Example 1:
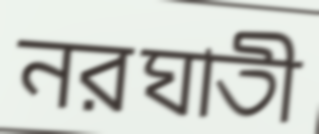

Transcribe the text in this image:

নরঘাতী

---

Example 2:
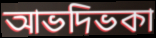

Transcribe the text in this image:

আভদিভকা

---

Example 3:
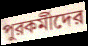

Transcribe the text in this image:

পুরকর্মীদের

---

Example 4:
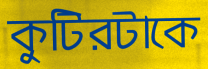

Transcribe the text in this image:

কুটিরটাকে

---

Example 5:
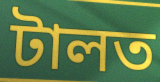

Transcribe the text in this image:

টালত